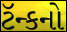
ટૅન્કનો